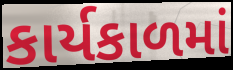
કાર્યકાળમાં